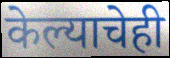
केल्याचेही